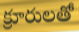
క్రూరులతో